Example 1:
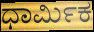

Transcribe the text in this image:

ಧಾರ್ಮಿಕ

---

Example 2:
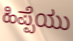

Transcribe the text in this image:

ಹಿಪ್ಪೆಯು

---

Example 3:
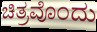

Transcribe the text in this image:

ಚಿತ್ರವೊಂದು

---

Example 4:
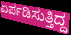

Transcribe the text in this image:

ಏರ್ಪಡಿಸುತ್ತಿದ್ದ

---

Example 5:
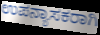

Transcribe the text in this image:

ಉಪನ್ಯಾಸಕರಾಗಿ